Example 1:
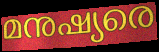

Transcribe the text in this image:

മനുഷ്യരെ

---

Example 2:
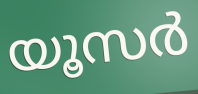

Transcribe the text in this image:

യൂസർ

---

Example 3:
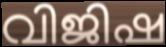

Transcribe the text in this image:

വിജിഷ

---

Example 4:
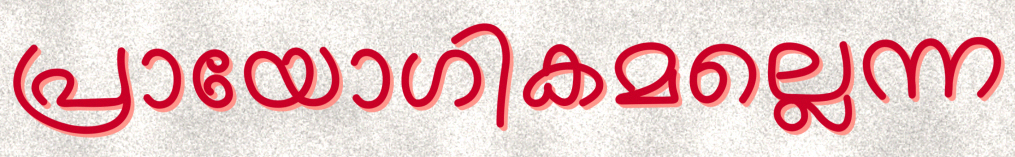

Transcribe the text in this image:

പ്രായോഗികമല്ലെന്ന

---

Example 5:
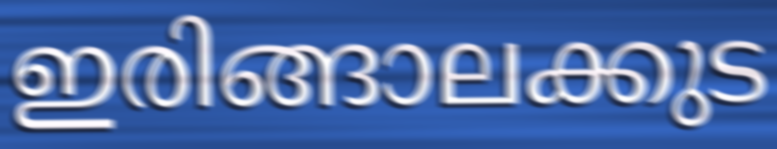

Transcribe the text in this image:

ഇരിങ്ങാലക്കുട